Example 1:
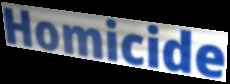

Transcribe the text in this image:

Homicide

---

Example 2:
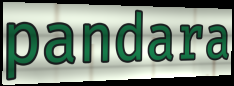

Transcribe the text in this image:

pandara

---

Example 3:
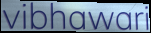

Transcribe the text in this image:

vibhawari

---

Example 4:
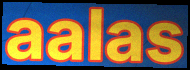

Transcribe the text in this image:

aalas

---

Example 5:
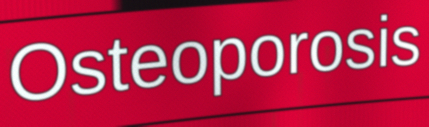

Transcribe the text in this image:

Osteoporosis